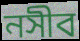
নসীব